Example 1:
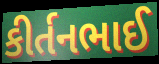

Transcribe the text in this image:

કીર્તનભાઈ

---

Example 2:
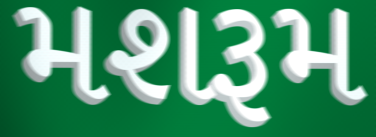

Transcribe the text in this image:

મશરૂમ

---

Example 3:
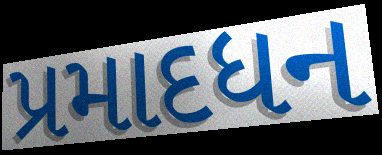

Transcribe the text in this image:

પ્રમાદધન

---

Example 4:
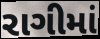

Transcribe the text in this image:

રાગીમાં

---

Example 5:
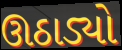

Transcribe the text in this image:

ઊઠાડ્યો